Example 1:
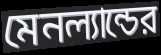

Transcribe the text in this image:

মেনল্যান্ডের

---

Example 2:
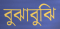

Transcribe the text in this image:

বুঝাবুঝি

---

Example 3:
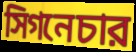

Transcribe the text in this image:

সিগনেচার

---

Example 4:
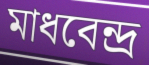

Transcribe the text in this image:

মাধবেন্দ্র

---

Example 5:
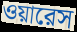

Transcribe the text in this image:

ওয়ারেস